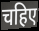
चहिए